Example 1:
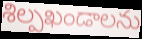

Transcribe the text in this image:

శిల్పఖండాలను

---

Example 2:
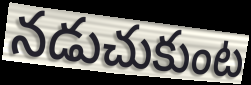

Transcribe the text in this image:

నడుచుకుంట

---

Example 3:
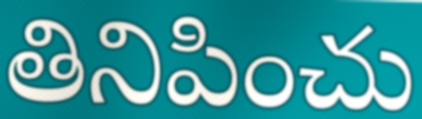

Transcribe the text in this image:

తినిపించు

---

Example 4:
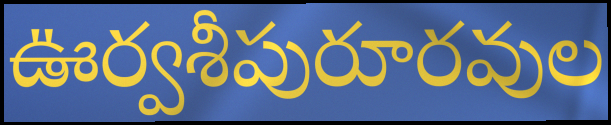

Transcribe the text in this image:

ఊర్వశీపురూరవుల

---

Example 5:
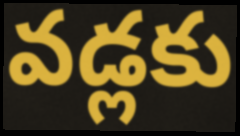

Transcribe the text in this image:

వడ్లకు